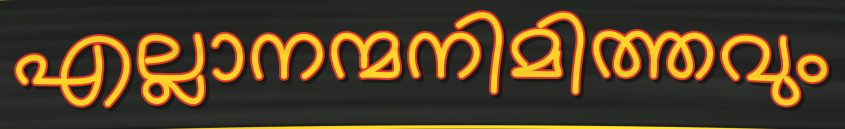
എല്ലാനന്മനിമിത്തവും